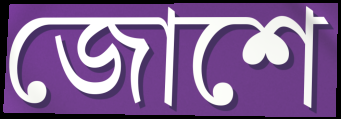
জোশে